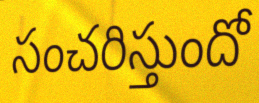
సంచరిస్తుందో